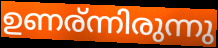
ഉണര്ന്നിരുന്നു